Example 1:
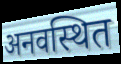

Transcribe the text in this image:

अनवस्थित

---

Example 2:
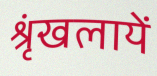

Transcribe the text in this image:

श्रृंखलायें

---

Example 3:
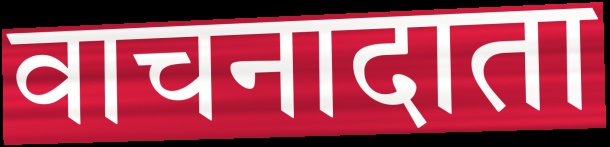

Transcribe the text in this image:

वाचनादाता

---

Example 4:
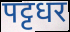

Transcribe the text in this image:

पट्टधर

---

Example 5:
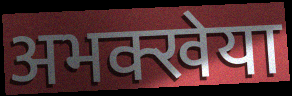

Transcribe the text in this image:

अभक्खेया